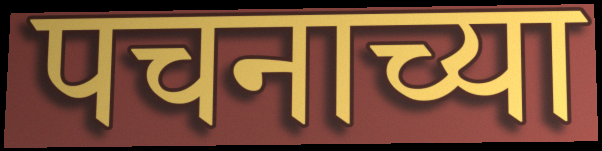
पचनाच्या